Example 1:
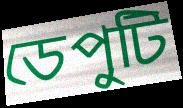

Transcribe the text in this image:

ডেপুটি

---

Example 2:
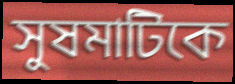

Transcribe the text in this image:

সুষমাটিকে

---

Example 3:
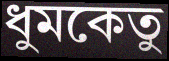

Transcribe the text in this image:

ধুমকেতু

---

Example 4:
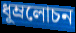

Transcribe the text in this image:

ধূম্রলোচন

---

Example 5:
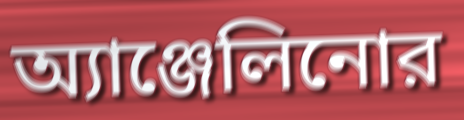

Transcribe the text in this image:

অ্যাঞ্জেলিনোর